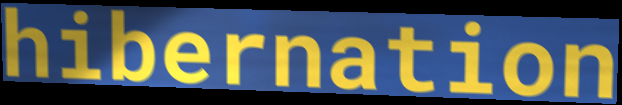
hibernation